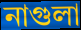
নাগুলা